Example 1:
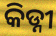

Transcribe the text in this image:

କିଡ୍ନୀ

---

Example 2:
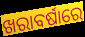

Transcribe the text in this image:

ଖରାବର୍ଷାରେ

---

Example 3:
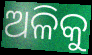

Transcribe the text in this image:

ଅଳିକୁ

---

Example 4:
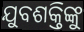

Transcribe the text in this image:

ଯୁବଶକ୍ତିଙ୍କୁ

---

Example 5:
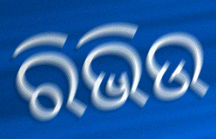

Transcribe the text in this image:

ରିଭିଉ